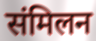
संमिलन